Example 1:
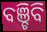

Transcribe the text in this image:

ବଞ୍ଚିବି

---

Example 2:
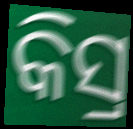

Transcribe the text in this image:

କିସ୍ର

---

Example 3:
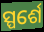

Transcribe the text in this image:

ସ୍ପର୍ଶେ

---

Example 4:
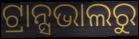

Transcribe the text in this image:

ଟ୍ରାନ୍ସଭାଲରୁ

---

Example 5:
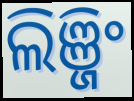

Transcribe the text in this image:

ଲିଞ୍ଜିଂ